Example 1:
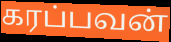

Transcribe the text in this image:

கரப்பவன்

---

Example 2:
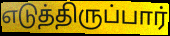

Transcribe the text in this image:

எடுத்திருப்பார்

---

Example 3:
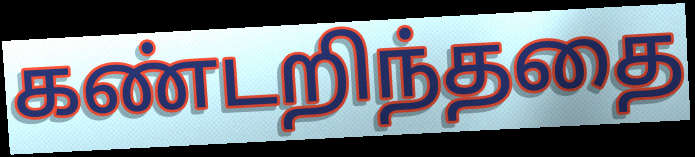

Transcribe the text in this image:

கண்டறிந்ததை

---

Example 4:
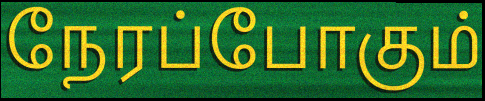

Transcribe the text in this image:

நேரப்போகும்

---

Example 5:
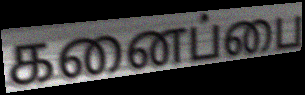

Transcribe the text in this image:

கனைப்பை